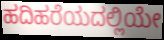
ಹದಿಹರೆಯದಲ್ಲಿಯೇ